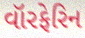
વૉરફેરિન